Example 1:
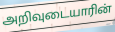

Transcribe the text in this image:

அறிவுடையாரின்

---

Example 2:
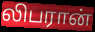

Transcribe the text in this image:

லிபரான்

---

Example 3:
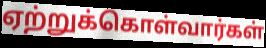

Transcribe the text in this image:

ஏற்றுக்கொள்வார்கள்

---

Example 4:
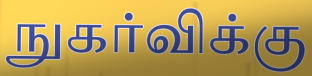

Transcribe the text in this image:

நுகர்விக்கு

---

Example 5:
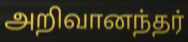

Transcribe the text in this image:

அறிவானந்தர்